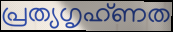
പ്രത്യഗൃഹ്ണത